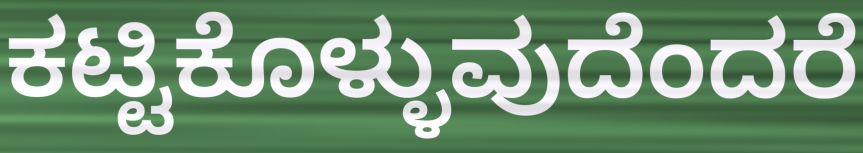
ಕಟ್ಟಿಕೊಳ್ಳುವುದೆಂದರೆ